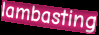
lambasting